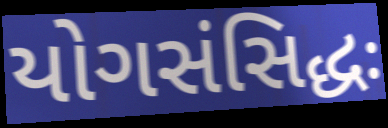
યોગસંસિદ્ધઃ